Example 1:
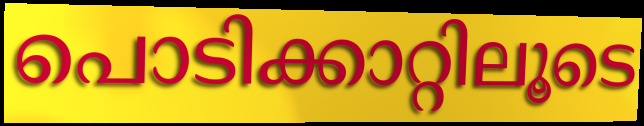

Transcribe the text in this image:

പൊടിക്കാറ്റിലൂടെ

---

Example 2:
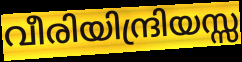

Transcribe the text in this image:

വീരിയിന്ദ്രിയസ്സ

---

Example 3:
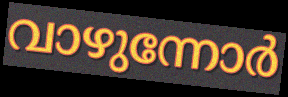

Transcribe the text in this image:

വാഴുന്നോർ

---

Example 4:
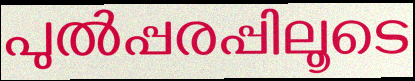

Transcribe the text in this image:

പുൽപ്പരപ്പിലൂടെ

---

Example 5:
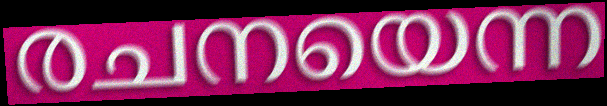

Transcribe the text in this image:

രചനയെന്ന